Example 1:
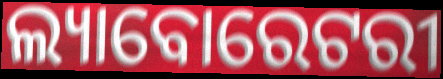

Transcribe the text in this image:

ଲ୍ୟାବୋରେଟରୀ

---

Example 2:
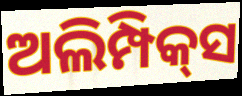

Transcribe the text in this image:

ଅଲିମ୍ପିକ୍‌ସ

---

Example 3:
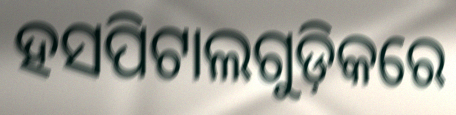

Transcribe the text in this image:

ହସପିଟାଲଗୁଡ଼ିକରେ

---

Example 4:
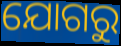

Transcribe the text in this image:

ଯୋଗରୁ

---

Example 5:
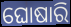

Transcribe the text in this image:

ଘୋଷାରି